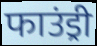
फाउंड्री